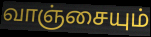
வாஞ்சையும்